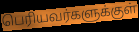
பெரியவர்களுக்குள்